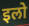
इलो